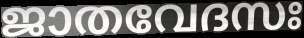
ജാതവേദസഃ